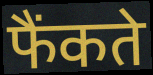
फैंकते